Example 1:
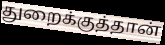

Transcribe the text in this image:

துறைக்குத்தான்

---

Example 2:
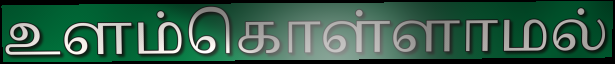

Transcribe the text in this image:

உளம்கொள்ளாமல்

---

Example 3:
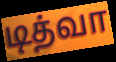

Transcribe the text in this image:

டித்வா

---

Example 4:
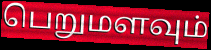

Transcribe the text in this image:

பெறுமளவும்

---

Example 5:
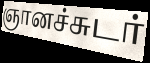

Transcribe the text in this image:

ஞானச்சுடர்